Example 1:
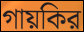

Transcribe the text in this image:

গায়কির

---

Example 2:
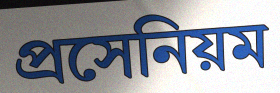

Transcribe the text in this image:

প্রসেনিয়ম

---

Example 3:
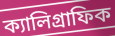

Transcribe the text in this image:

ক্যালিগ্রাফিক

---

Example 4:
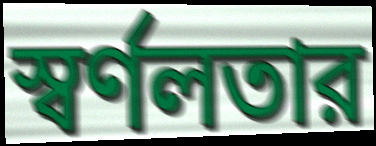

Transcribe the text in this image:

স্বর্ণলতার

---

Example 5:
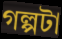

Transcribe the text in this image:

গল্পটা